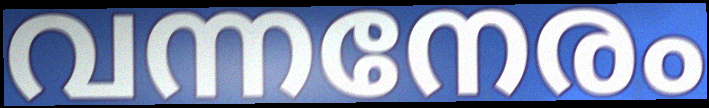
വന്നനേരം